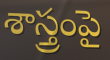
శాస్త్రంపై